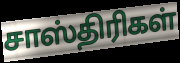
சாஸ்திரிகள்